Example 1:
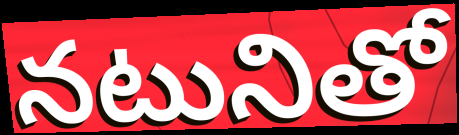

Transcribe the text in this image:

నటునితో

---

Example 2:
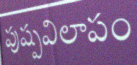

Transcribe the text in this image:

పుష్పవిలాపం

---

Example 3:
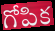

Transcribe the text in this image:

గోపిక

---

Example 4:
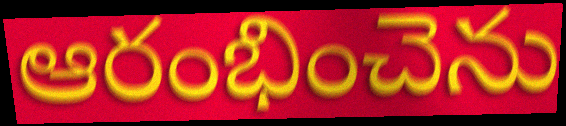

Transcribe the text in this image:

ఆరంభించెను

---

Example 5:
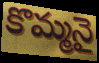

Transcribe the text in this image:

కొమ్మనై